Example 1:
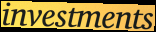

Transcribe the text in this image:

investments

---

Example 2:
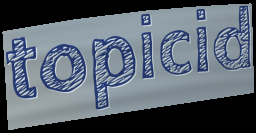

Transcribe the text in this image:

topicid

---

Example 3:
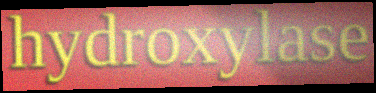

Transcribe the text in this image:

hydroxylase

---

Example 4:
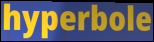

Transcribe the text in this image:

hyperbole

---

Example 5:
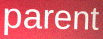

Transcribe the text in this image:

parent